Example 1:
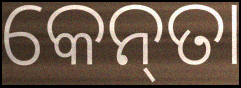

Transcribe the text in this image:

କେନ୍‌ତା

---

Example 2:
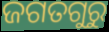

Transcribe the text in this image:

ଜଗତଗୁରୁ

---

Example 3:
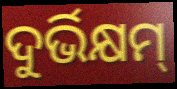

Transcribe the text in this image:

ଦୁର୍ଭିକ୍ଷମ୍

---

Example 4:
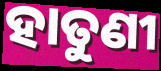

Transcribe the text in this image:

ହାତୁଣୀ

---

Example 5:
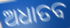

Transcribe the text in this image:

ଅଧାତବ